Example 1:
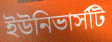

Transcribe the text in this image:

ইউনিভার্সটি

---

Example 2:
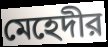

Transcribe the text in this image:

মেহেদীর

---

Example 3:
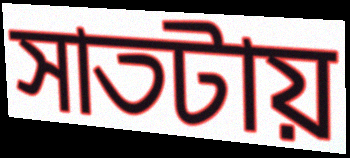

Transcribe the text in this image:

সাতটায়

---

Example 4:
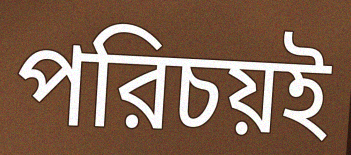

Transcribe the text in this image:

পরিচয়ই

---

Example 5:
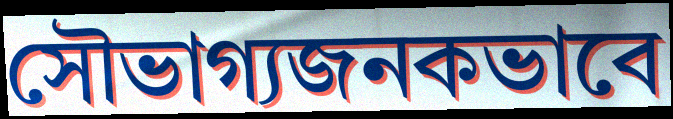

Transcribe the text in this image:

সৌভাগ্যজনকভাবে